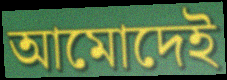
আমোদেই